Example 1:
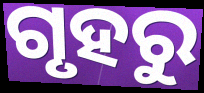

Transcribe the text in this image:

ଗୃହରୁ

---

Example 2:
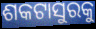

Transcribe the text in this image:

ଶକଟାସୁରକୁ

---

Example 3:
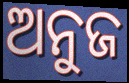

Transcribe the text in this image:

ଅନୁଜ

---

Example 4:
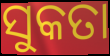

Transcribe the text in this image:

ସୁକତା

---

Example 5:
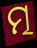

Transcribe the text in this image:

ତ୍ମ